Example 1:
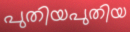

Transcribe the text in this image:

പുതിയപുതിയ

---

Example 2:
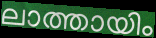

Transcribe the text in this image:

ലാത്തായിം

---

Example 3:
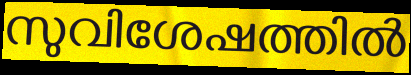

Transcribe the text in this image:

സുവിശേഷത്തിൽ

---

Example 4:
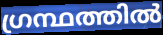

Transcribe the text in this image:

ഗ്രന്ഥത്തിൽ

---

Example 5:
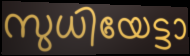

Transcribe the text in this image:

സുധിയേട്ടാ